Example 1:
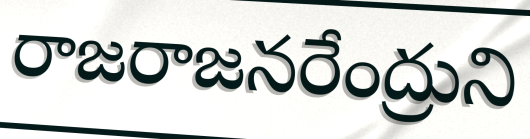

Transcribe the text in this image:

రాజరాజనరేంద్రుని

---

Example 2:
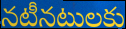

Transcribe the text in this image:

నటీనటులకు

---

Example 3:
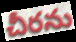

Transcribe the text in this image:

చీరను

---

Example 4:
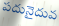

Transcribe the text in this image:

పదునైదువ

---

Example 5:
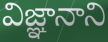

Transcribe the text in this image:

విజ్ఞానాని